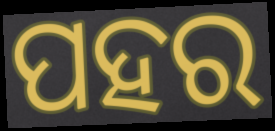
ପହର